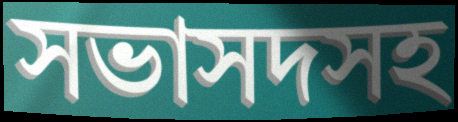
সভাসদসহ